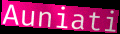
Auniati